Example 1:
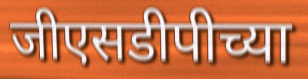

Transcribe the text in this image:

जीएसडीपीच्या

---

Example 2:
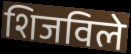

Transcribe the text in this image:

शिजविले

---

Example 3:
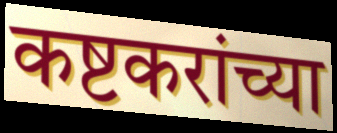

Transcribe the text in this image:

कष्टकरांच्या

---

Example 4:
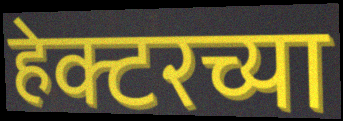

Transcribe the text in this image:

हेक्टरच्या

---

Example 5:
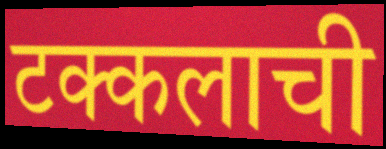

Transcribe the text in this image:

टक्कलाची